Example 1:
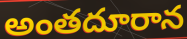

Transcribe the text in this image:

అంతదూరాన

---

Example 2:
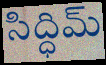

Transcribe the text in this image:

సిద్ధిమ్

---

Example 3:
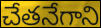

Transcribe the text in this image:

చేతనేగాని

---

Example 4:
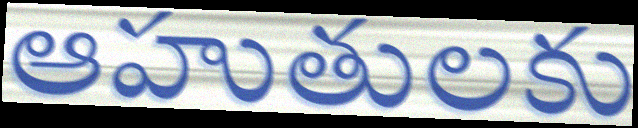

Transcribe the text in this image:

ఆహుతులకు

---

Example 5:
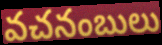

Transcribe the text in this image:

వచనంబులు